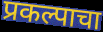
प्रकल्पाचा